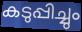
കടുപ്പിച്ചും